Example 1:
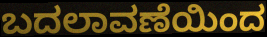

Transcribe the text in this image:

ಬದಲಾವಣೆಯಿಂದ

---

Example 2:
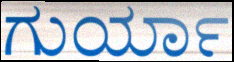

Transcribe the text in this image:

ಗುರ್ಯಾ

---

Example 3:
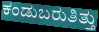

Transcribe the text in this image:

ಕಂಡುಬರುತಿತ್ತು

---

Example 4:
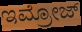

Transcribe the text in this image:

ಇಮ್ರೋಜ್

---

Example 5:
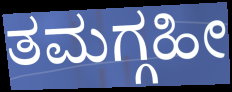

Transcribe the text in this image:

ತಮಗ್ಗಹೀ